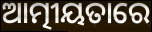
ଆତ୍ମୀୟତାରେ